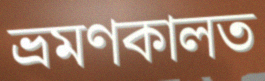
ভ্ৰমণকালত